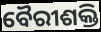
ବୈରୀଶକ୍ତି